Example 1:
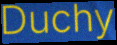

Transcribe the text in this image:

Duchy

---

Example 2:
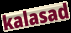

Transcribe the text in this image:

kalasad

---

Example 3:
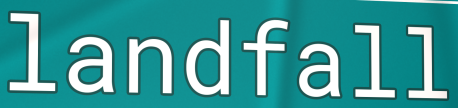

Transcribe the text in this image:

landfall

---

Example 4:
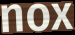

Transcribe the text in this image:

nox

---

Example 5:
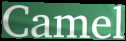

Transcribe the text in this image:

Camel